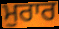
ਮੁਰਾਰ